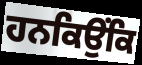
ਹਨਕਿਉਂਕਿ